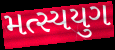
મત્સ્યયુગ